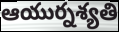
ఆయుర్నశ్యతి